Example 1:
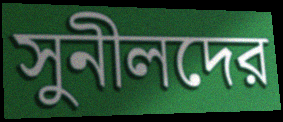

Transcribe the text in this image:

সুনীলদের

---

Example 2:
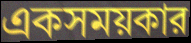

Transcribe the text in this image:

একসময়কার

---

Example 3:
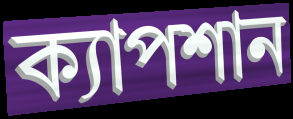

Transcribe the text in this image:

ক্যাপশান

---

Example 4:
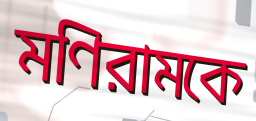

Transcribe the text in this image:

মণিরামকে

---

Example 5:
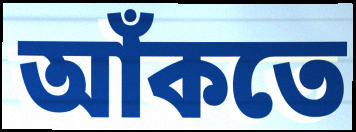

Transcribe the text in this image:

আঁকতে